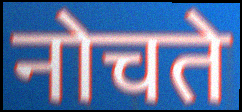
नोचते